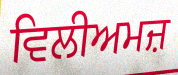
ਵਿਲੀਅਮਜ਼